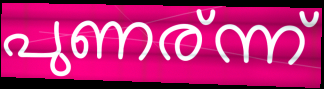
പുണര്ന്ന്